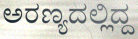
ಅರಣ್ಯದಲ್ಲಿದ್ದ